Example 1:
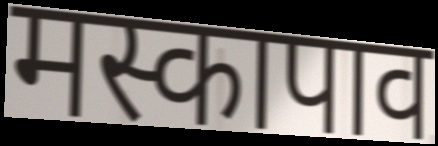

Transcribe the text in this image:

मस्कापाव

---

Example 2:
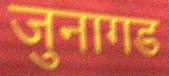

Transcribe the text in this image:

जुनागड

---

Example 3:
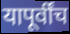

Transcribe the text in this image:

यापूर्वींच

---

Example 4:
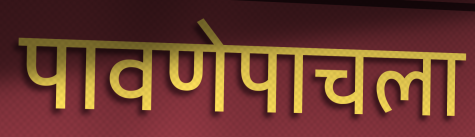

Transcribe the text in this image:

पावणेपाचला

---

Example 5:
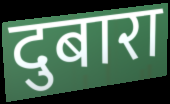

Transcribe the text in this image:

दुबारा